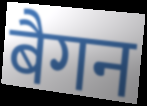
बैगन